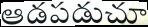
ఆడపడుచూ